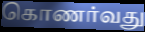
கொணர்வது